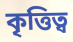
কৃত্তিত্ব